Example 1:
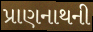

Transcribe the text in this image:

પ્રાણનાથની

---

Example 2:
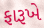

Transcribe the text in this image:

ફારૂખે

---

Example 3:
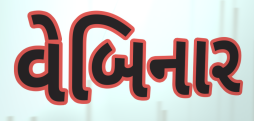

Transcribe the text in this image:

વેબિનાર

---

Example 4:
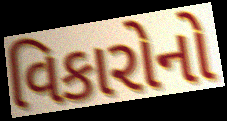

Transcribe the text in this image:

વિકારોનો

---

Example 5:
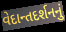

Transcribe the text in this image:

વેદાન્તદર્શનનું